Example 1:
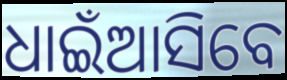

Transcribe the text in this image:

ଧାଇଁଆସିବେ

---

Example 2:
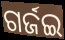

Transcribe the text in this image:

ଗର୍ଜଇ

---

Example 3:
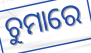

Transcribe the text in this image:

ଚୁମାରେ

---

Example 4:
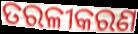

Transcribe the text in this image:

ତରଳୀକରଣ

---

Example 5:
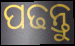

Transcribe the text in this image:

ପଢନ୍ତୁ